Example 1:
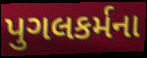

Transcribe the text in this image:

પુગલકર્મના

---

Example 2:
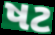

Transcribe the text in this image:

ષટ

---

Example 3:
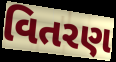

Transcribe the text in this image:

વિતરણ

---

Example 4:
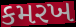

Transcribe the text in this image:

કમરખ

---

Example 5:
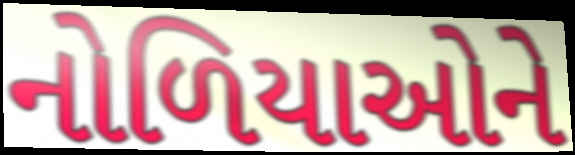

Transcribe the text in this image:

નોળિયાઓને